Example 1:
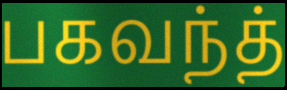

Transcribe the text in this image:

பகவந்த்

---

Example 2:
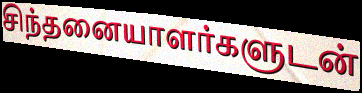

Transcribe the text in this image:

சிந்தனையாளர்களுடன்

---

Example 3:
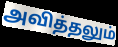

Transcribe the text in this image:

அவித்தலும்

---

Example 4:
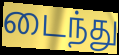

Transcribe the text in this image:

டைந்து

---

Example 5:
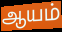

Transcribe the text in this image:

ஆயம்